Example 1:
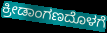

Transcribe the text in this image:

ಕ್ರೀಡಾಂಗಣದೊಳಗೆ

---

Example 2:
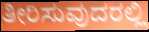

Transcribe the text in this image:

ತೀರಿಸುವುದರಲ್ಲಿ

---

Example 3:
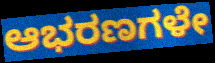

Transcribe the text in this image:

ಆಭರಣಗಳೇ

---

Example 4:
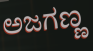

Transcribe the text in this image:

ಅಜಗಣ್ಣ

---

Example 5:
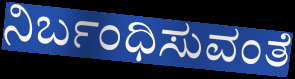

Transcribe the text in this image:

ನಿರ್ಬಂಧಿಸುವಂತೆ